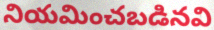
నియమించబడినవి